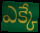
ఎక్కే